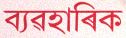
ব্যৱহাৰিক